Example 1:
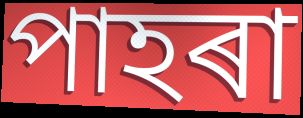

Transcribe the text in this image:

পাহৰা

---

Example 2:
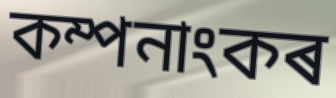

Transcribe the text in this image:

কম্পনাংকৰ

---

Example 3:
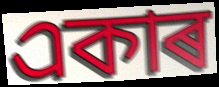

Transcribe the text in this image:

একাৰ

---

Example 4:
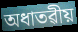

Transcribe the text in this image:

অধাতৱীয়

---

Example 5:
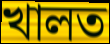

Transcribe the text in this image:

খালত